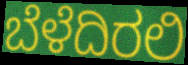
ಬೆಳೆದಿರಲಿ